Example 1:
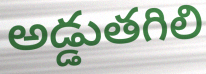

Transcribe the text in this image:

అడ్డుతగిలి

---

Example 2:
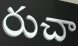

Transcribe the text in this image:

రుచా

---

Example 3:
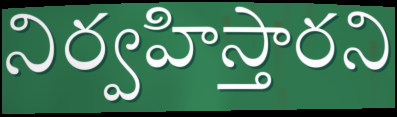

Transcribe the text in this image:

నిర్వహిస్తారని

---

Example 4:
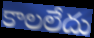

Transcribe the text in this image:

కాలలేదు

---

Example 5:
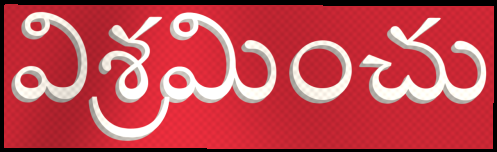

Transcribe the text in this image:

విశ్రమించు